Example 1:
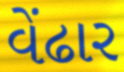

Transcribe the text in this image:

વેંઢાર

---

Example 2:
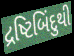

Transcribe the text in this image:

દ્રષ્ટિબિંદુથી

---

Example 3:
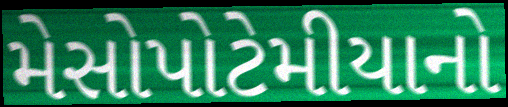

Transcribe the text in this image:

મેસોપોટેમીયાનો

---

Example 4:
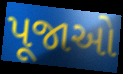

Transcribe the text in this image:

પૂજાઓ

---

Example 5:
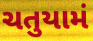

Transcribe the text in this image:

ચતુયામં